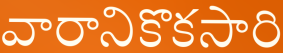
వారానికొకసారి